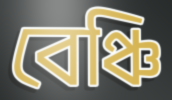
বেঞ্চি